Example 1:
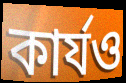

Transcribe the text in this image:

কার্যও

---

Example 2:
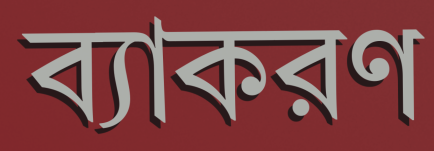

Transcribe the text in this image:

ব্যাকরণ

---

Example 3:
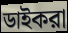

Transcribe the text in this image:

ডাইকরা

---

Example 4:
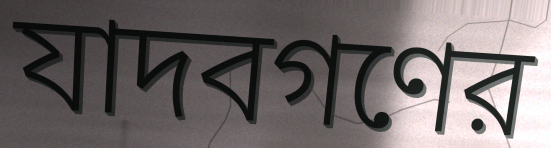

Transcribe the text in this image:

যাদবগণের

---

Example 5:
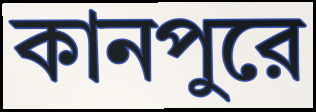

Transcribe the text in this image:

কানপুরে